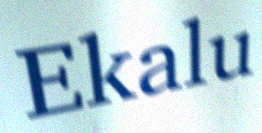
Ekalu